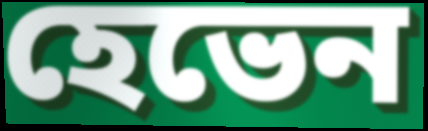
হেভেন